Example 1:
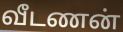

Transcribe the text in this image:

வீடணன்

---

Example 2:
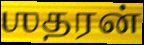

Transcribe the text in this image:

ஶதரன்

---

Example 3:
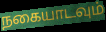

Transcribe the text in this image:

நகையாடவும்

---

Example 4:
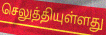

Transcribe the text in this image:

செலுத்தியுள்ளது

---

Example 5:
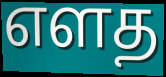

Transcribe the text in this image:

எளத